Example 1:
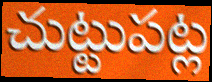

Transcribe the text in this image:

చుట్టుపట్ల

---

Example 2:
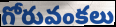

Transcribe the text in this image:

గోరువంకలు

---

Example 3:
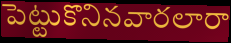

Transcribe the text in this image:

పెట్టుకొనినవారలారా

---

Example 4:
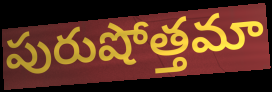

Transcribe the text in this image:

పురుషోత్తమా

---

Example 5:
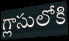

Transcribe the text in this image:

గ్లాసులోకి